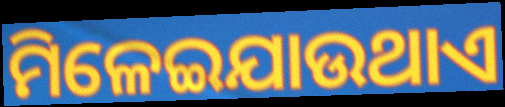
ମିଳେଇଯାଉଥାଏ